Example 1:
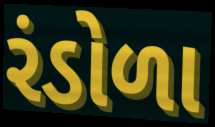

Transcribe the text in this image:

રંડોળા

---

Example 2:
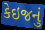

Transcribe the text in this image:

કેઇજનું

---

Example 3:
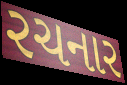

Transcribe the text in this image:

રચનાર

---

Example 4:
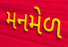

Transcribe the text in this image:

મનમેળ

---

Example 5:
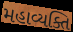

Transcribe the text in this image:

મહાવ્યક્તિ